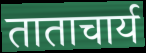
ताताचार्य